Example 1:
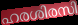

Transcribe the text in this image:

ഹരശിരസി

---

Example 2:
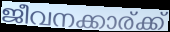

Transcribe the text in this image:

ജീവനക്കാര്ക്ക്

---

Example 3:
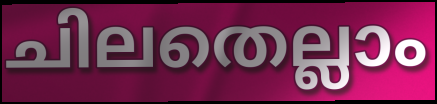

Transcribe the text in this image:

ചിലതെല്ലാം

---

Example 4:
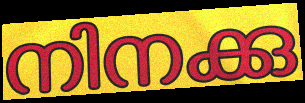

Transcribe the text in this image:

നിനക്കു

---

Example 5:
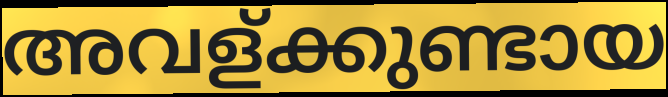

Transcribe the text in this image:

അവള്ക്കുണ്ടായ